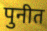
पुनीत